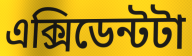
এক্সিডেন্টটা